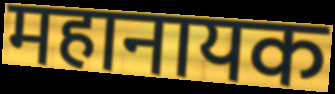
महानायक